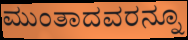
ಮುಂತಾದವರನ್ನೂ